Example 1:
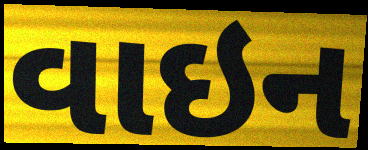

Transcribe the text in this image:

વાઇન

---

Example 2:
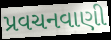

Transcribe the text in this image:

પ્રવચનવાણી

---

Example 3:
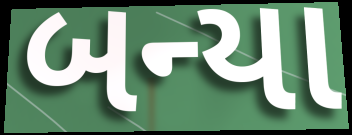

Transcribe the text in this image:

બન્યા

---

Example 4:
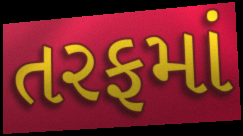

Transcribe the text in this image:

તરફમાં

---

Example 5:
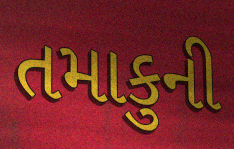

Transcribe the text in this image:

તમાકુની